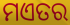
ମଏତର